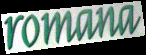
romana